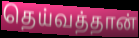
தெய்வத்தான்